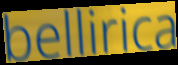
bellirica